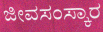
ಜೀವಸಂಸ್ಕಾರ